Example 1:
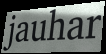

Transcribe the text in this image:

jauhar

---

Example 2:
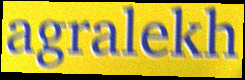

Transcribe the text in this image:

agralekh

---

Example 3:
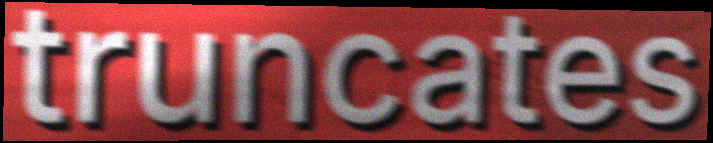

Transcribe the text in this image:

truncates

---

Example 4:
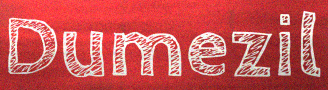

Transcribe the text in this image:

Dumezil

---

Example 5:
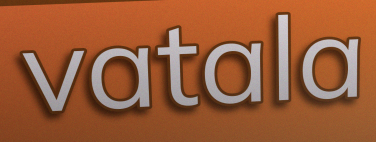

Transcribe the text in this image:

vatala